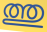
ത്തു